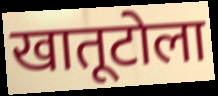
खातूटोला